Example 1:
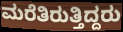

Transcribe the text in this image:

ಮರೆತಿರುತ್ತಿದ್ದರು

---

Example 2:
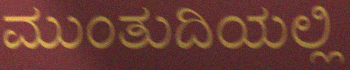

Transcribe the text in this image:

ಮುಂತುದಿಯಲ್ಲಿ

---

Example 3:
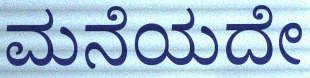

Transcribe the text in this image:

ಮನೆಯದೇ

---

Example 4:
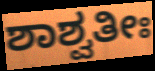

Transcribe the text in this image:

ಶಾಶ್ವತೀಃ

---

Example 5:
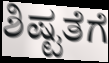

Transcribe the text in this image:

ಶಿಷ್ಟತೆಗೆ